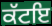
ਕੱਟਇ